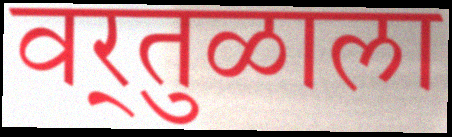
वर्तुळाला